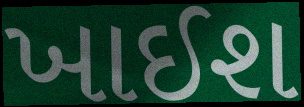
ખાઈશ